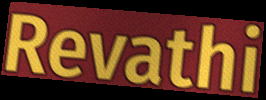
Revathi